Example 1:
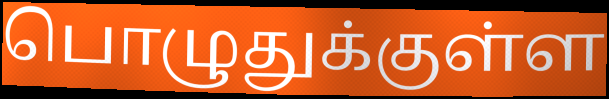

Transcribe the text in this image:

பொழுதுக்குள்ள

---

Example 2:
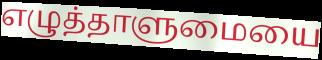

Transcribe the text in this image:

எழுத்தாளுமையை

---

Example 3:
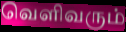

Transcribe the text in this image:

வெளிவரும்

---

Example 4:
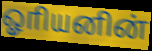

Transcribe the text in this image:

ஓரியனின்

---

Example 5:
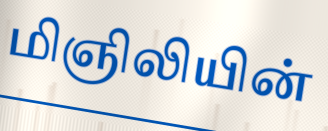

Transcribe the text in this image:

மிஞிலியின்